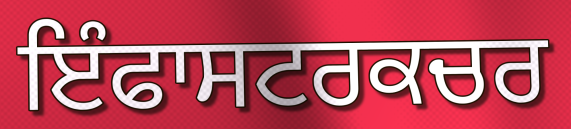
ਇੰਫਾਸਟਰਕਚਰ